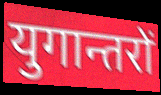
युगान्तरों